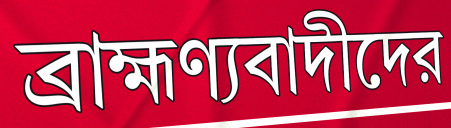
ব্রাহ্মণ্যবাদীদের